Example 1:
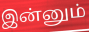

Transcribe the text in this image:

இன்னும்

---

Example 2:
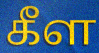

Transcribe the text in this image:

கீள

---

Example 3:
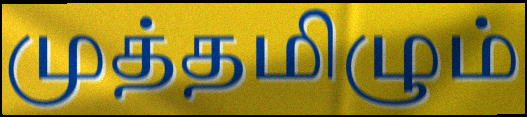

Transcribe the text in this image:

முத்தமிழும்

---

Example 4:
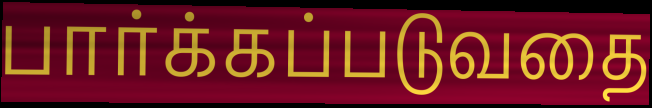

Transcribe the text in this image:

பார்க்கப்படுவதை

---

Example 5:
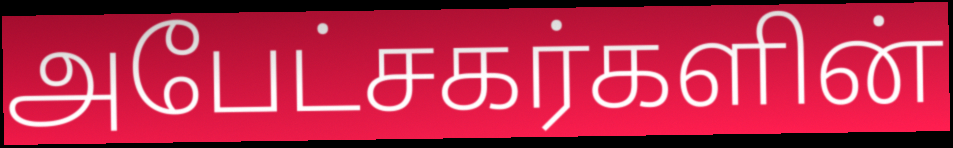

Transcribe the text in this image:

அபேட்சகர்களின்